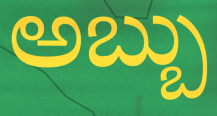
అబ్బు